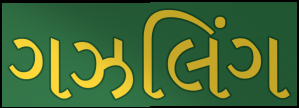
ગઝલિંગ